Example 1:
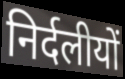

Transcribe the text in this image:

निर्दलीयों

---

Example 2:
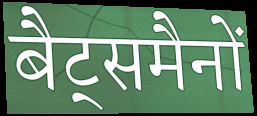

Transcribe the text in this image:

बैट्समैनों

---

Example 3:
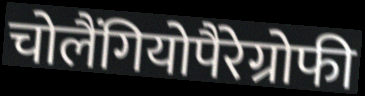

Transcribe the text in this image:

चोलैंगियोपैरेग्रोफी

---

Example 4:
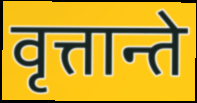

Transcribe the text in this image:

वृत्तान्ते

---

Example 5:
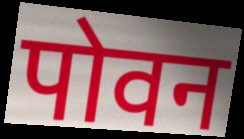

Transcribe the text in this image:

पोवन